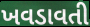
ખવડાવતી